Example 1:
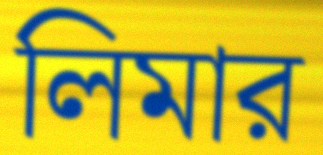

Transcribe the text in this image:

লিমার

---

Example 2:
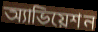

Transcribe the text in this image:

অ্যাভিয়েশন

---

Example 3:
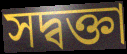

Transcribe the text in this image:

সদ্বক্তা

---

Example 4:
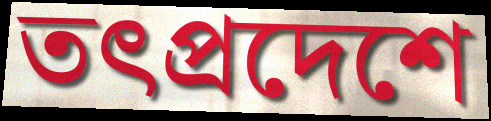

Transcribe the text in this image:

তৎপ্রদেশে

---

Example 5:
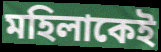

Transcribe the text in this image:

মহিলাকেই